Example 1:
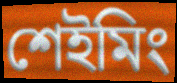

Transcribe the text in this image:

শেইমিং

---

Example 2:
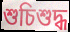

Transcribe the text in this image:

শুচিশুদ্ধ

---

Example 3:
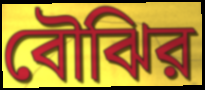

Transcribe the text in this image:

বৌঝির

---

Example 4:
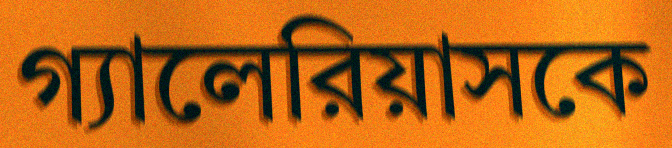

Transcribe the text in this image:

গ্যালেরিয়াসকে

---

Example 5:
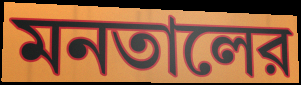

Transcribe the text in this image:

মনতালের